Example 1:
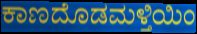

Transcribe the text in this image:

ಕಾಣದೊಡಮಳ್ತಿಯಿಂ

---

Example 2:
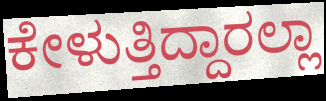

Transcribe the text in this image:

ಕೇಳುತ್ತಿದ್ದಾರಲ್ಲಾ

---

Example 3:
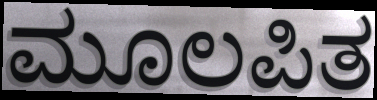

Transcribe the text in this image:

ಮೂಲಪಿತ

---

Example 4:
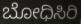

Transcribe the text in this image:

ಬೋಧಿಸಿರಿ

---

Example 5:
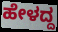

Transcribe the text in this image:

ಹೇಳದ್ದ